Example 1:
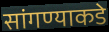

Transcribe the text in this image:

सांगण्याकडे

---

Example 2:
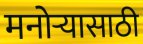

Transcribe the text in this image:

मनोऱ्यासाठी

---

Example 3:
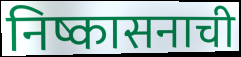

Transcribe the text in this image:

निष्कासनाची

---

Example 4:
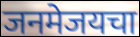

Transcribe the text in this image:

जनमेजयचा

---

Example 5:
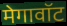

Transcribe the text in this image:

मेगावॉट